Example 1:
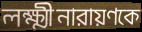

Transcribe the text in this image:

লক্ষ্মীনারায়ণকে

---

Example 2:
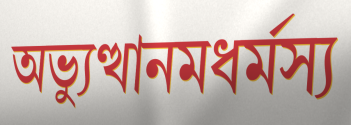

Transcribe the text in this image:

অভ্যুত্থানমধর্মস্য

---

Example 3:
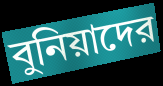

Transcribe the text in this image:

বুনিয়াদের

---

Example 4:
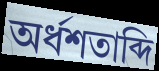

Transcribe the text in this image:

অর্ধশতাব্দি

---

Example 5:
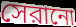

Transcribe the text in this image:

সেরানো